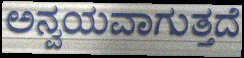
ಅನ್ವಯವಾಗುತ್ತದೆ